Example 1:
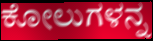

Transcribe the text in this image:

ಕೋಲುಗಳನ್ನ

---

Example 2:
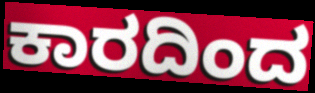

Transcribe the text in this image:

ಕಾರದಿಂದ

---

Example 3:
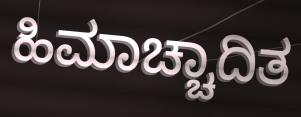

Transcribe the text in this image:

ಹಿಮಾಚ್ಚಾದಿತ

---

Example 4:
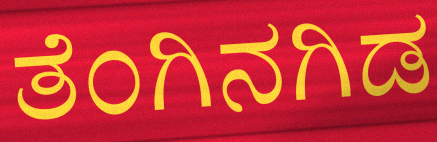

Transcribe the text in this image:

ತೆಂಗಿನಗಿಡ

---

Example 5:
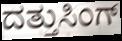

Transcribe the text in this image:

ದತ್ತುಸಿಂಗ್